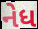
નેધ